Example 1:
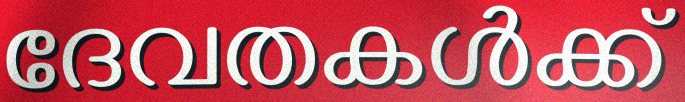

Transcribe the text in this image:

ദേവതകൾക്ക്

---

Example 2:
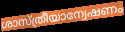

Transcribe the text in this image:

ശാസ്ത്രീയാന്വേഷണം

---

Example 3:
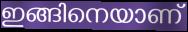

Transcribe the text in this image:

ഇങ്ങിനെയാണ്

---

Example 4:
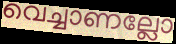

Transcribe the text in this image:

വെച്ചാണല്ലോ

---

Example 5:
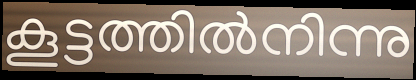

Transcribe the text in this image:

കൂട്ടത്തിൽനിന്നു